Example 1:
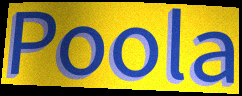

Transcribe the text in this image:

Poola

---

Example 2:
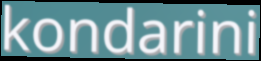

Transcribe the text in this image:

kondarini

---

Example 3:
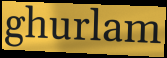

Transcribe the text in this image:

ghurlam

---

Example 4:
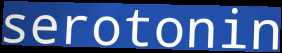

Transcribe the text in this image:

serotonin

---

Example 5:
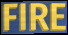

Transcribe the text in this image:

FIRE